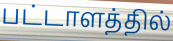
பட்டாளத்தில்